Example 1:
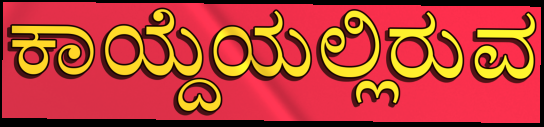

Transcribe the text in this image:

ಕಾಯ್ದೆಯಲ್ಲಿರುವ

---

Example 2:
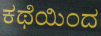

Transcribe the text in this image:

ಕಥೆಯಿಂದ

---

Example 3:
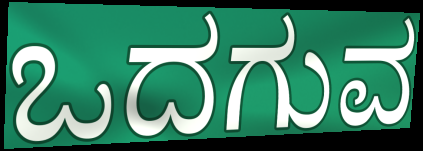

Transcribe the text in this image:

ಒದಗುವ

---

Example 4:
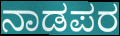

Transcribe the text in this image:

ನಾಡಪರ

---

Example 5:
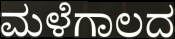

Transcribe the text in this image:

ಮಳೆಗಾಲದ